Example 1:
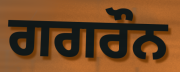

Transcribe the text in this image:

ਗਗਰੌਨ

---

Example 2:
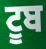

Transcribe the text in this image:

ਟੂਬ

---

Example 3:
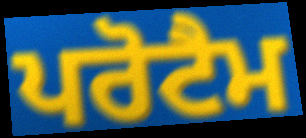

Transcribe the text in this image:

ਪਰੋਟੈਮ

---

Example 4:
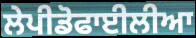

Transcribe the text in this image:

ਲੇਪੀਡੋਫਾਈਲੀਆ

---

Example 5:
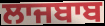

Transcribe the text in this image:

ਲਾਜਬਾਬ